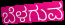
ಬೆಳಗುವ